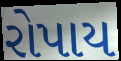
રોપાય